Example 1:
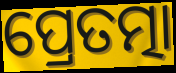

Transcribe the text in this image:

ପ୍ରେତତ୍ମା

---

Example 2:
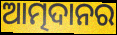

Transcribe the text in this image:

ଆତ୍ମଦାନର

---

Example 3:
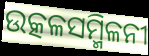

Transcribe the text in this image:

ଉତ୍କଳସମ୍ମିଳନୀ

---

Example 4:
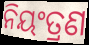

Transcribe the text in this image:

ନିୟଂତ୍ରଣ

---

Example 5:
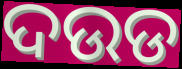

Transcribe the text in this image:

ଦଉଡ